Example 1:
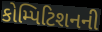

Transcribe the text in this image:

કોમ્પિટિશનની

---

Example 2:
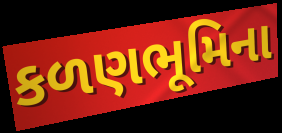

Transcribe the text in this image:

કળણભૂમિના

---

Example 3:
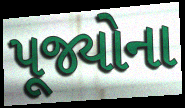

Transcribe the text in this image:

પૂજ્યોના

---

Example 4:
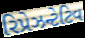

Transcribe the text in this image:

રિપ્રેઝન્ટેટિવ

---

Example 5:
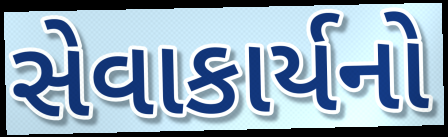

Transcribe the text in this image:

સેવાકાર્યનો